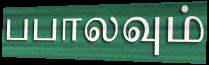
பபாலவும்